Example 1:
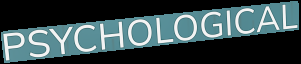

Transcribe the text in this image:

PSYCHOLOGICAL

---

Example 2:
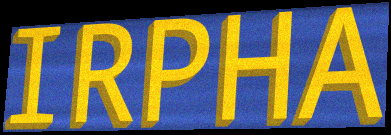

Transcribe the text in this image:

IRPHA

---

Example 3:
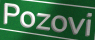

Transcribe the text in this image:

Pozovi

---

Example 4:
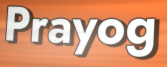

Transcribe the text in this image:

Prayog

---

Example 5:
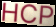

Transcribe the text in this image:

HCP